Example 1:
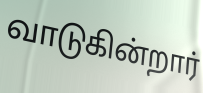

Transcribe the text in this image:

வாடுகின்றார்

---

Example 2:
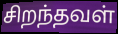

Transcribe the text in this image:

சிறந்தவள்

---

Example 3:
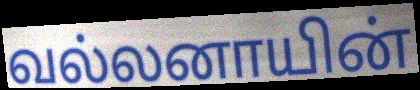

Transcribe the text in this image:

வல்லனாயின்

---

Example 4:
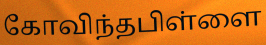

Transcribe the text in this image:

கோவிந்தபிள்ளை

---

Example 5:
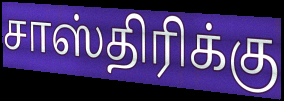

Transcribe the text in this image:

சாஸ்திரிக்கு